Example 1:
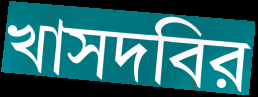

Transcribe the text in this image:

খাসদবির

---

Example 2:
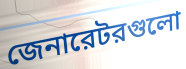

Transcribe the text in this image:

জেনারেটরগুলো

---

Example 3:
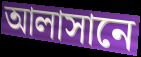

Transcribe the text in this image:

আলাসানে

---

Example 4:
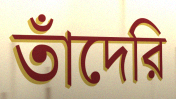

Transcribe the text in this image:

তাঁদেরি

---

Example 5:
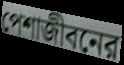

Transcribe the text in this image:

পেশাজীবনের